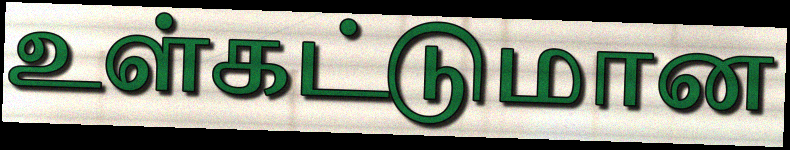
உள்கட்டுமான